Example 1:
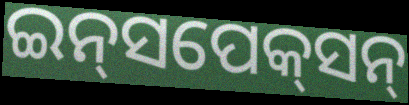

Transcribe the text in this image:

ଇନ୍‌ସପେକ୍‌ସନ୍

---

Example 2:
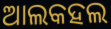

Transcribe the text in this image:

ଆଲକହଲ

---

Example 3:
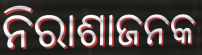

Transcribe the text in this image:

ନିରାଶାଜନକ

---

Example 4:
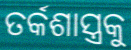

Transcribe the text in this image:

ତର୍କଶାସ୍ତ୍ରକୁ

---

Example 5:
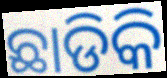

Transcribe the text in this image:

ଛାଡିକି